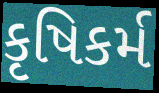
કૃષિકર્મ